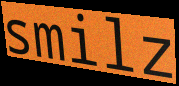
smilz